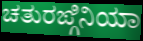
ಚತುರಙ್ಗಿನಿಯಾ